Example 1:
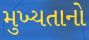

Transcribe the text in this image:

મુખ્યતાનો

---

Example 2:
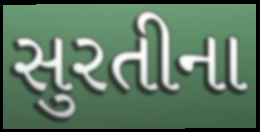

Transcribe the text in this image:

સુરતીના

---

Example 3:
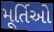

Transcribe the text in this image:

મૂર્તિઓ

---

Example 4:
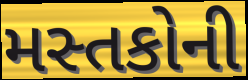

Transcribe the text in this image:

મસ્તકોની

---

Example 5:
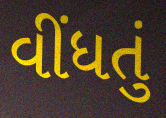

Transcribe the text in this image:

વીંધતું